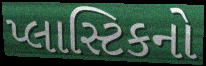
પ્લાસ્ટિકનો